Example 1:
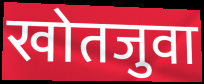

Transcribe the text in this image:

खोतजुवा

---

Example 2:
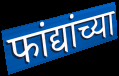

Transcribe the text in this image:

फांद्यांच्या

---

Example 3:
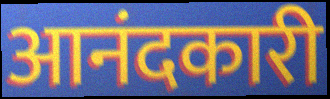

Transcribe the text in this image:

आनंदकारी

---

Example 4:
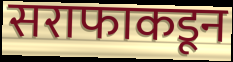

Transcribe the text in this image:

सराफाकडून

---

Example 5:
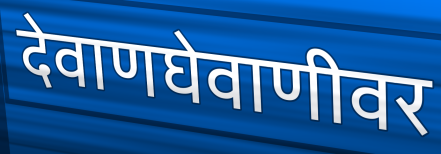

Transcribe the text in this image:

देवाणघेवाणीवर